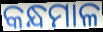
କନ୍ଧମାଳ